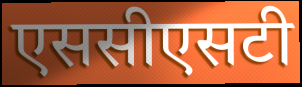
एससीएसटी